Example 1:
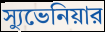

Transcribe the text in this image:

স্যুভেনিয়ার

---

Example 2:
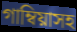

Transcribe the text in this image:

গাম্বিয়াসহ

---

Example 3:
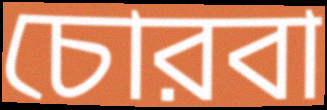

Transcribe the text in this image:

চোরবা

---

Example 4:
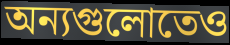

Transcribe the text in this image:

অন্যগুলোতেও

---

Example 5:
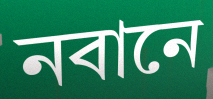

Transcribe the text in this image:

নবানে